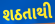
શઠતાથી